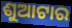
ଶୁଆଟାର